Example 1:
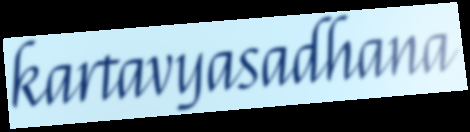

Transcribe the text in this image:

kartavyasadhana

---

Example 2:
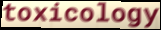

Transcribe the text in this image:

toxicology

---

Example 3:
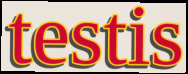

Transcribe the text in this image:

testis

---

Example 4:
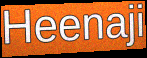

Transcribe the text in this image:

Heenaji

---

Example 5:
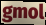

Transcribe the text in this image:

gmol